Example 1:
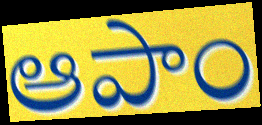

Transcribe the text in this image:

ఆపాం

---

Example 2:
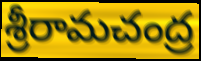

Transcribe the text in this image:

శ్రీరామచంద్ర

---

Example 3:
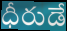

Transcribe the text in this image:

ధీరుడే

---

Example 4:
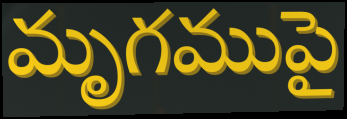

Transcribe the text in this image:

మృగముపై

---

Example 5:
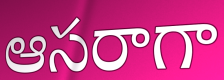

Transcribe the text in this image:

ఆసరాగా